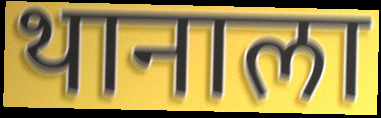
थानाला